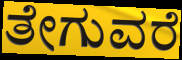
ತೇಗುವರೆ